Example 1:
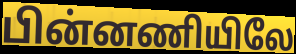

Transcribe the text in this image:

பின்னணியிலே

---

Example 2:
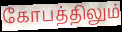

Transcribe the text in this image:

கோபத்திலும்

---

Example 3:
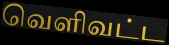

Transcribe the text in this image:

வெளிவட்ட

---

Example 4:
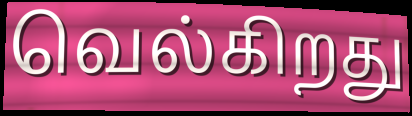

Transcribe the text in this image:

வெல்கிறது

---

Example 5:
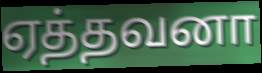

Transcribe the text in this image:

ஏத்தவனா